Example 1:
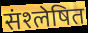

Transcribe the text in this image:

संश्लेषित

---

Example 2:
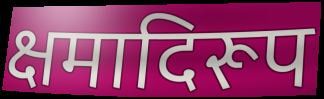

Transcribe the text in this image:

क्षमादिरूप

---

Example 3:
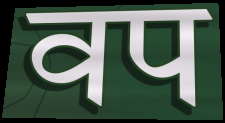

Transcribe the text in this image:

वप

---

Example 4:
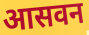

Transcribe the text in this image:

आसवन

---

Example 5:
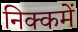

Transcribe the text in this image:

निक्कमें